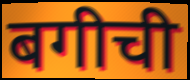
बगीची